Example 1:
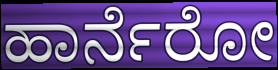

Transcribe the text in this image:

ಹಾರ್ನೆರೋ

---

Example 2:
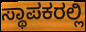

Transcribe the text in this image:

ಸ್ಥಾಪಕರಲ್ಲಿ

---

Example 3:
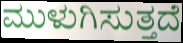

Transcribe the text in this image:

ಮುಳುಗಿಸುತ್ತದೆ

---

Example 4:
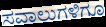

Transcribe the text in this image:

ಸವಾಲುಗಳಿಗೂ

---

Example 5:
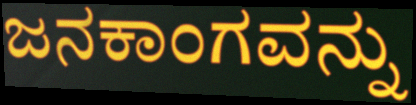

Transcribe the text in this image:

ಜನಕಾಂಗವನ್ನು